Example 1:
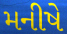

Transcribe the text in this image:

મનીષે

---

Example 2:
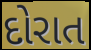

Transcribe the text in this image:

દોરાત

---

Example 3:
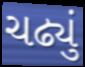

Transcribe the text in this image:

ચઢ્યું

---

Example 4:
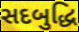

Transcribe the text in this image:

સદબુદ્ધિ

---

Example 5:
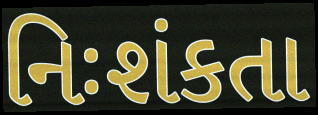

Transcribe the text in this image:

નિઃશંકતા